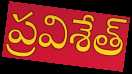
ప్రవిశేత్